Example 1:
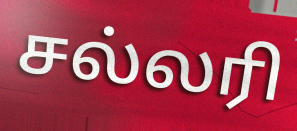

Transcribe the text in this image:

சல்லரி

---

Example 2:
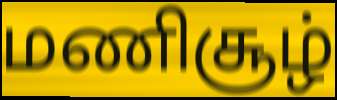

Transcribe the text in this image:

மணிசூழ்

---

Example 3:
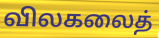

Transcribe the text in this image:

விலகலைத்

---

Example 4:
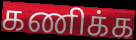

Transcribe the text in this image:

கணிக்க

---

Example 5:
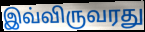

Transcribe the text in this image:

இவ்விருவரது